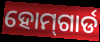
ହୋମ୍‌ଗାର୍ଡ